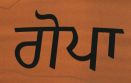
ਗੋਪਾ